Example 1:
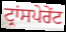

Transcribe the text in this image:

ਟ੍ਰਾਂਸਪੇਰੇਂਟ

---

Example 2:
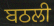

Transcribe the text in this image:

ਬਠਲੀ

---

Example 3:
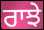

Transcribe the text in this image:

ਰਾਝੇ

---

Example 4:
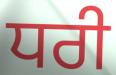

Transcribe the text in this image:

ਧਰੀ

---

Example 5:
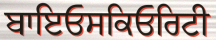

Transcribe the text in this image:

ਬਾਇਓਸਕਿਓਰਿਟੀ